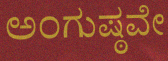
ಅಂಗುಷ್ಠವೇ